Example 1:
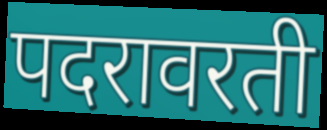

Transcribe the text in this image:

पदरावरती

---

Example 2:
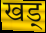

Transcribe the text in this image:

खड्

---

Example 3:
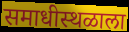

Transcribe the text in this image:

समाधीस्थळाला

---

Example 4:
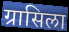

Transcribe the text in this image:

ग्रासिला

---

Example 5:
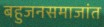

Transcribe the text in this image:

बहुजनसमाजांत